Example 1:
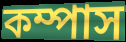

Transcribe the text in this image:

কম্পাস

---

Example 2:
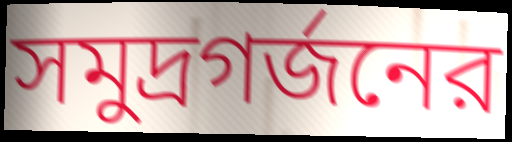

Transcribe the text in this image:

সমুদ্রগর্জনের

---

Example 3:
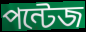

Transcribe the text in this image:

পন্টেজ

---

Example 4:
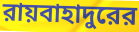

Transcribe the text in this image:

রায়বাহাদুরের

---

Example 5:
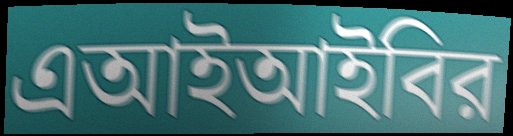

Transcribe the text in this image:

এআইআইবির